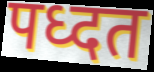
पध्दत